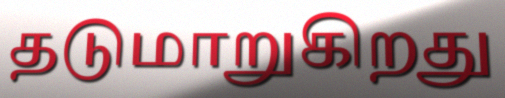
தடுமாறுகிறது